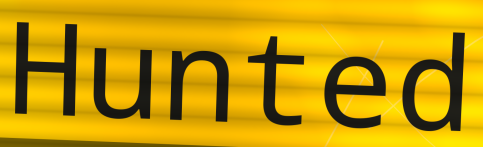
Hunted